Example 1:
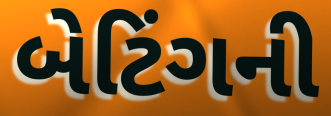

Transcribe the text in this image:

બેટિંગની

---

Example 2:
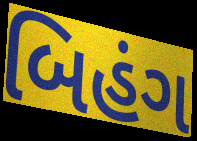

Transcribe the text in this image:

બિહંગ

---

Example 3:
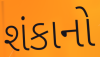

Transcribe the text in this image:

શંકાનો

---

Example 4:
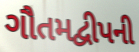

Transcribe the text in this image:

ગૌતમદ્વીપની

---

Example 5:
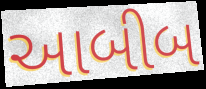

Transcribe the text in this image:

આબીબ